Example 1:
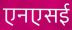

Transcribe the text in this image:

एनएसई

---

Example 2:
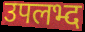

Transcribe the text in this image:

उपलभ्द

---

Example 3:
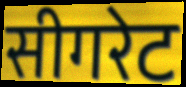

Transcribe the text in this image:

सीगरेट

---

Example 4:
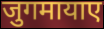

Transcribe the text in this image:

जुगमायाए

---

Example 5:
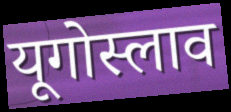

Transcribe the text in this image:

यूगोस्लाव